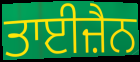
ਤਾਈਜ਼ੈਨ